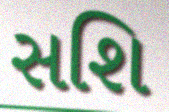
સશિ